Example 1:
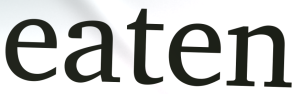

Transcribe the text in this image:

eaten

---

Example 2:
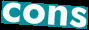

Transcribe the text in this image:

cons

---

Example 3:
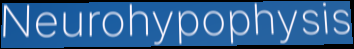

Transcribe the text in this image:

Neurohypophysis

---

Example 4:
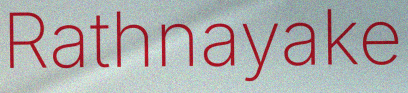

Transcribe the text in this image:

Rathnayake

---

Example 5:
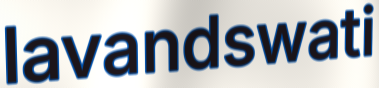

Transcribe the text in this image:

lavandswati